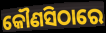
କୌଣସିଠାରେ